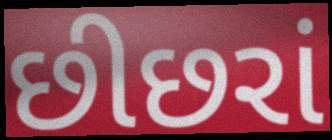
છીછરાં